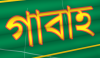
গাবাহ